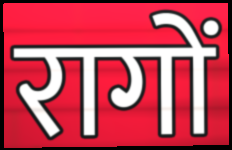
रागों